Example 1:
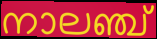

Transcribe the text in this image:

നാലഞ്ച്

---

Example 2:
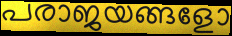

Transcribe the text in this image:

പരാജയങ്ങളോ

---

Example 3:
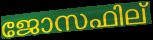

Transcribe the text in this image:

ജോസഫില്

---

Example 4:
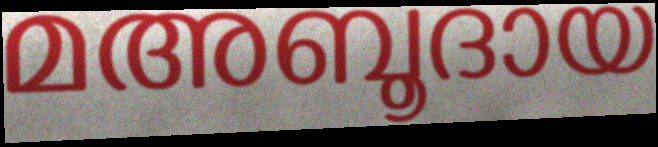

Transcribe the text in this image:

മഅബൂദായ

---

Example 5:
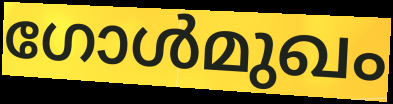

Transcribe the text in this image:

ഗോൾമുഖം